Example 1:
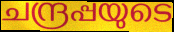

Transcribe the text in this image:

ചന്ദ്രപ്പയുടെ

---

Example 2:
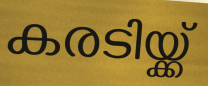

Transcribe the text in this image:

കരടിയ്ക്ക്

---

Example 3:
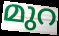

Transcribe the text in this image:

മുറ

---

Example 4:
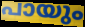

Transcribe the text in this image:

പായും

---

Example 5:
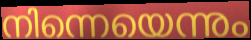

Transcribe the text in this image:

നിന്നെയെന്നും